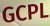
GCPL